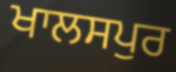
ਖਾਲਸਪੁਰ